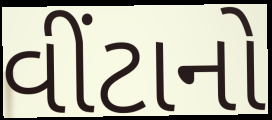
વીંટાનો